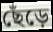
ছেঁড়ে